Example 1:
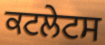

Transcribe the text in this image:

ਕਟਲੇਟਸ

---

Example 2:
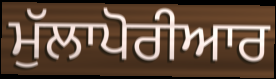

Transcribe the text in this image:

ਮੁੱਲਾਪੋਰੀਆਰ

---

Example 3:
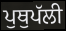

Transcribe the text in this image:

ਪੁਥੁਪੱਲੀ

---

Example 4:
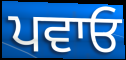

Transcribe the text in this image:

ਪਵਾਓ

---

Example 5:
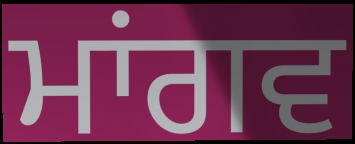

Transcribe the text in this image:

ਮਾਂਗਵ